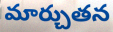
మార్చుతన